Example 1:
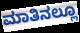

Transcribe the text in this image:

ಮಾತಿನಲ್ಲೂ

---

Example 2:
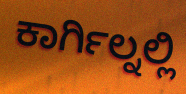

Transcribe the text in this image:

ಕಾರ್ಗಿಲ್ನಲ್ಲಿ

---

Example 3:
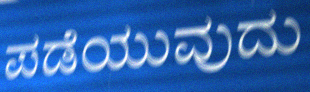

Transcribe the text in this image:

ಪಡೆಯುವುದು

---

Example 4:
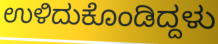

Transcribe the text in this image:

ಉಳಿದುಕೊಂಡಿದ್ದಳು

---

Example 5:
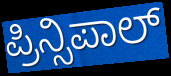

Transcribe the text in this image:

ಪ್ರಿನ್ಸಿಪಾಲ್